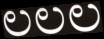
ಲಲಲ